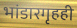
भांडारगृहही